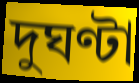
দুঘণ্টা